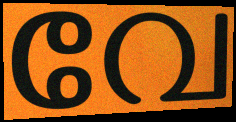
വേ